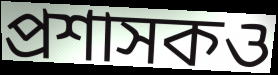
প্রশাসকও